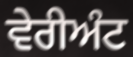
ਵੇਰੀਅੰਟ